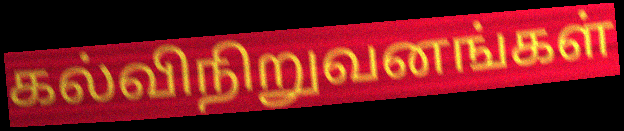
கல்விநிறுவனங்கள்